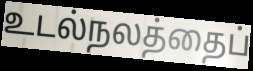
உடல்நலத்தைப்